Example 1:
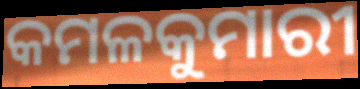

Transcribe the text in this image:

କମଳକୁମାରୀ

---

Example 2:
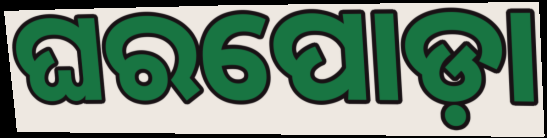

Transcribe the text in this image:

ଘରପୋଡ଼ା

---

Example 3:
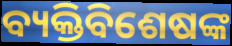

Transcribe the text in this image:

ବ୍ୟକ୍ତିବିଶେଷଙ୍କ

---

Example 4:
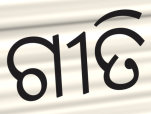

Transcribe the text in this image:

ଗୀତି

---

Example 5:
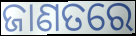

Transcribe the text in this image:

ଜାଣତରେ